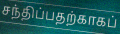
சந்திப்பதற்காகப்